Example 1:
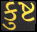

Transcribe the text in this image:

કુષ્ટ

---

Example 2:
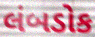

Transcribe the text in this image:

લંબડોક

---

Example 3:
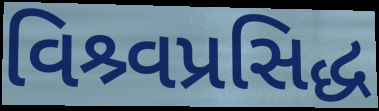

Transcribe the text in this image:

વિશ્ર્વપ્રસિદ્ધ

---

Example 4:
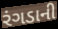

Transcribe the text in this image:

રંગડાની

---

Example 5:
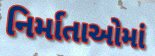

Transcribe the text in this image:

નિર્માતાઓમાં